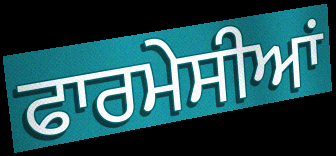
ਫਾਰਮੇਸੀਆਂ